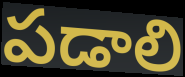
పడాలి